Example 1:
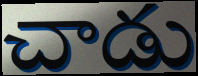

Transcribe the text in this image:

చాడు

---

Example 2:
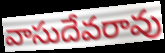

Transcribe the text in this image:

వాసుదేవరావు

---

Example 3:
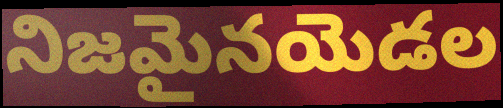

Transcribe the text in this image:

నిజమైనయెడల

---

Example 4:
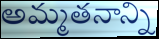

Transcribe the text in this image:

అమ్మతనాన్ని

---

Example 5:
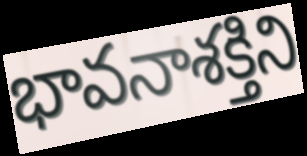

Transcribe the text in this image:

భావనాశక్తిని